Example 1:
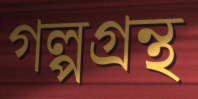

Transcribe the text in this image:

গল্পগ্রন্থ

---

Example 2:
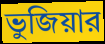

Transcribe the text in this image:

ভুজিয়ার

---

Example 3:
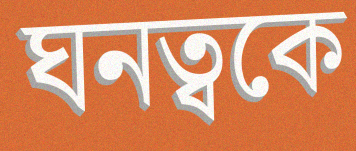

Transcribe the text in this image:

ঘনত্বকে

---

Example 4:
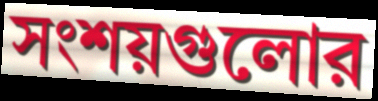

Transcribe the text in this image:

সংশয়গুলোর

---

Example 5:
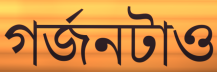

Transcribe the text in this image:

গর্জনটাও